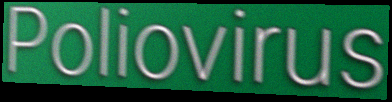
Poliovirus